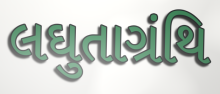
લઘુતાગ્રંથિ